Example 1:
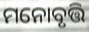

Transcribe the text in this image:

ମନୋବୃତ୍ତି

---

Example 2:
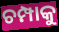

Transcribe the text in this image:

ଚମ୍ପାକୁ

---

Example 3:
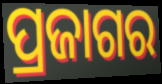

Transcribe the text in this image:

ପ୍ରଜାଗର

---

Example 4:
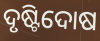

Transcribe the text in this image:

ଦୃଷ୍ଟିଦୋଷ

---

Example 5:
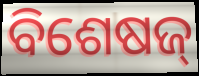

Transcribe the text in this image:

ବିଶେଷଜ୍